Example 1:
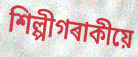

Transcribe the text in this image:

শিল্পীগৰাকীয়ে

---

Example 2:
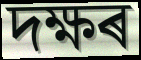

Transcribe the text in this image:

দক্ষৰ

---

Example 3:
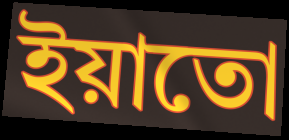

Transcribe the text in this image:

ইয়াতো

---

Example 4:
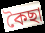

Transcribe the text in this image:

কৈছা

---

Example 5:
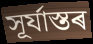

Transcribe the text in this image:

সূৰ্যাস্তৰ